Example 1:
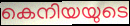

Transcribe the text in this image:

കെനിയയുടെ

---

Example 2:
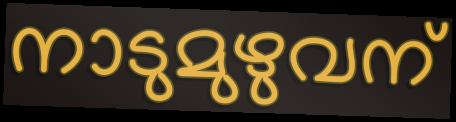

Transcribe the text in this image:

നാടുമുഴുവന്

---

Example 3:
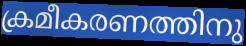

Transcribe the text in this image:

ക്രമീകരണത്തിനു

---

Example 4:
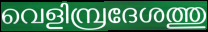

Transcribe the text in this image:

വെളിമ്പ്രദേശത്തു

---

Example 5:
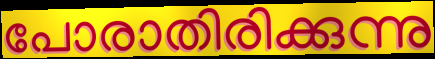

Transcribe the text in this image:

പോരാതിരിക്കുന്നു